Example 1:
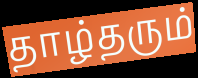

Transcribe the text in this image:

தாழ்தரும்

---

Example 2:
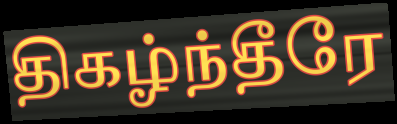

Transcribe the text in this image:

திகழ்ந்தீரே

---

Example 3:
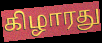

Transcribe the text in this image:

கிழாரது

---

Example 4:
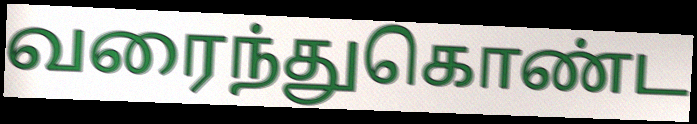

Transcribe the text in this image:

வரைந்துகொண்ட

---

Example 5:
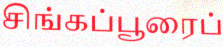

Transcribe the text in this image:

சிங்கப்பூரைப்